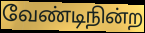
வேண்டிநின்ற